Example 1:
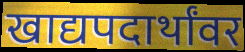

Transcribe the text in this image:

खाद्यपदार्थांवर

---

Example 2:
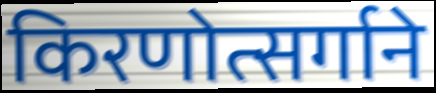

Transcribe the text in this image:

किरणोत्सर्गाने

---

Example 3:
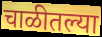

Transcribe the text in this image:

चाळीतल्या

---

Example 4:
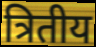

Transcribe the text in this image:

त्रितीय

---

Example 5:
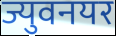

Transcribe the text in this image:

ज्युवनयर